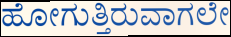
ಹೋಗುತ್ತಿರುವಾಗಲೇ